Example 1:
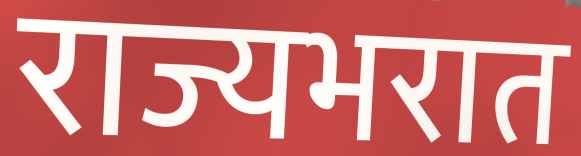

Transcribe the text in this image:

राज्यभरात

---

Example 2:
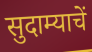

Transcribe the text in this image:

सुदाम्याचें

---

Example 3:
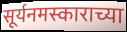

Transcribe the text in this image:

सूर्यनमस्काराच्या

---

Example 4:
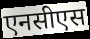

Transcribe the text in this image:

एनसीएस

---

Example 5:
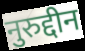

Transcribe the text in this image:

नुरुद्दीन